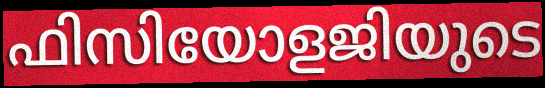
ഫിസിയോളജിയുടെ